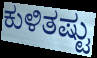
ಕುಳಿತಷ್ಟು